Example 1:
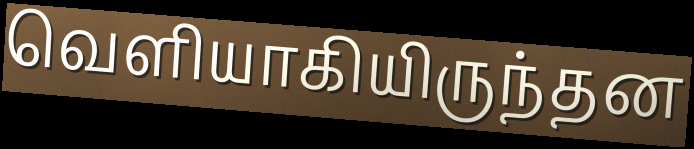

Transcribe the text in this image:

வெளியாகியிருந்தன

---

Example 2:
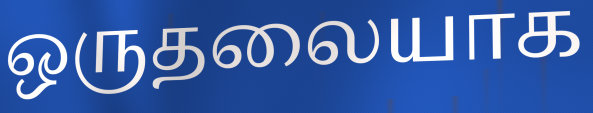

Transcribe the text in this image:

ஒருதலையாக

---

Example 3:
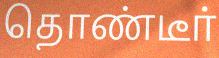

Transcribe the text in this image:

தொண்டீர்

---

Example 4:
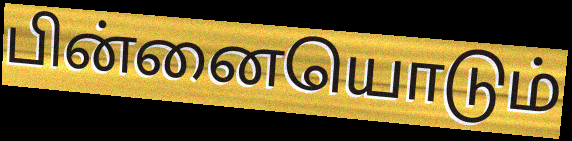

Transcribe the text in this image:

பின்னையொடும்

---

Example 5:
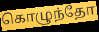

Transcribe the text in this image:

கொழுந்தோ